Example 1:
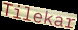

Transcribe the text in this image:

Tilekar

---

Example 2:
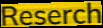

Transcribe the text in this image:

Reserch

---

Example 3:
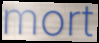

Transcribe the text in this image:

mort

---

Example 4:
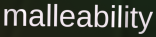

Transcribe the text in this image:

malleability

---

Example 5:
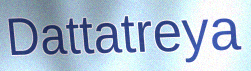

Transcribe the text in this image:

Dattatreya